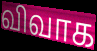
விவாக